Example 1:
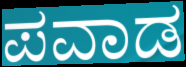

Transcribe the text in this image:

ಪವಾಡ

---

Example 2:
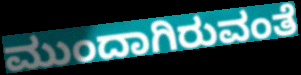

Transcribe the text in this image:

ಮುಂದಾಗಿರುವಂತೆ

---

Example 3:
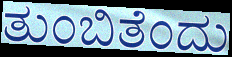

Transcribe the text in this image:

ತುಂಬಿತೆಂದು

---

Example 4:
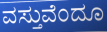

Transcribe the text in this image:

ವಸ್ತುವೆಂದೂ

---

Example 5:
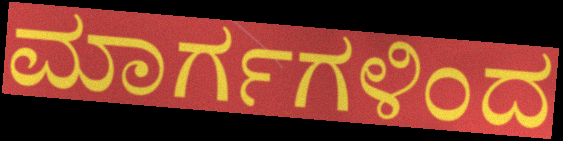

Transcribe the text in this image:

ಮಾರ್ಗಗಳಿಂದ